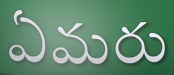
ఏమరు